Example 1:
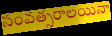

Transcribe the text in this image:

సంవత్సరాలయినా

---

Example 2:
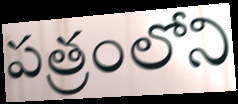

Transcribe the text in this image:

పత్రంలోని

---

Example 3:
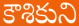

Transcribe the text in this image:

కౌశికుని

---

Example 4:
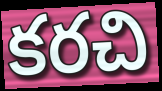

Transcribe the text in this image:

కరచి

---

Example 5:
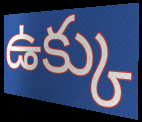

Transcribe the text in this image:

ఉక్కు